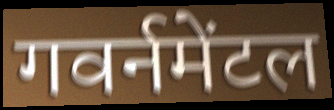
गवर्नमेंटल